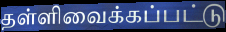
தள்ளிவைக்கப்பட்டு